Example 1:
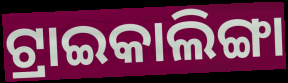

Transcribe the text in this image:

ଟ୍ରାଇକାଲିଙ୍ଗା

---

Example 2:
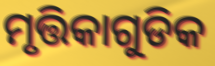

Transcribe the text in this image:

ମୃତ୍ତିକାଗୁଡିକ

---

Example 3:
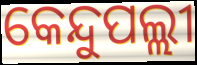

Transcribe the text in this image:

କେନ୍ଦୁପଲ୍ଲୀ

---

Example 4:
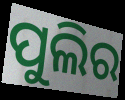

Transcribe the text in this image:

ପୁଲିର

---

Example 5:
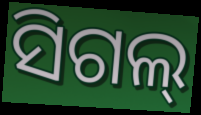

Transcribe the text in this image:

ସିଗଲ୍